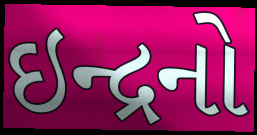
ઇન્દ્રનો